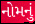
નોમનું